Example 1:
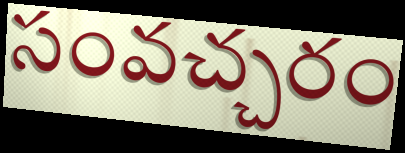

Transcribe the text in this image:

సంవచ్చరం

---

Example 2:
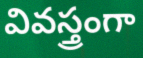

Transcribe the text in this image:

వివస్త్రంగా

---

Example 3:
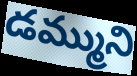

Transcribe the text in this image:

డమ్ముని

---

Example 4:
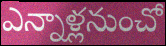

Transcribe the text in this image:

ఎన్నాళ్లనుంచో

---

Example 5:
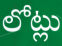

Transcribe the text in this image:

లోట్లు